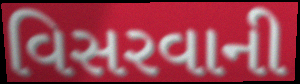
વિસરવાની